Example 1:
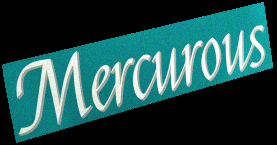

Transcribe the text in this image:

Mercurous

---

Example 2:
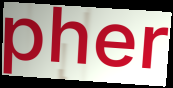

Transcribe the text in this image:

pher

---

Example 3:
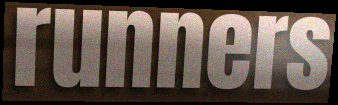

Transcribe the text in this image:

runners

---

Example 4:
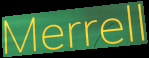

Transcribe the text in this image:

Merrell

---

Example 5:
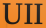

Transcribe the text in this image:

UII